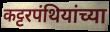
कट्टरपंथियांच्या